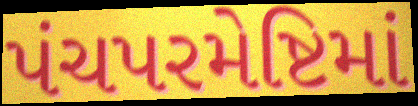
પંચપરમેષ્ટિમાં